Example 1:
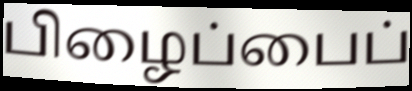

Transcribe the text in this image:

பிழைப்பைப்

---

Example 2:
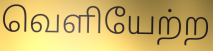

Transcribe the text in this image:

வெளியேற்ற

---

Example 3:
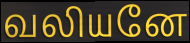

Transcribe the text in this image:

வலியனே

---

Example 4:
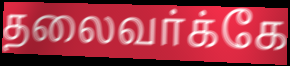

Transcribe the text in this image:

தலைவர்க்கே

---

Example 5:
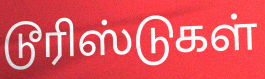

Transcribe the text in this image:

டூரிஸ்டுகள்